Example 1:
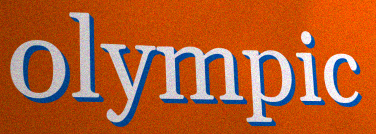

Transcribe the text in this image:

olympic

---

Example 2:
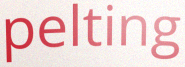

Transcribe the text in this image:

pelting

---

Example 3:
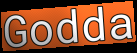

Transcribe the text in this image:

Godda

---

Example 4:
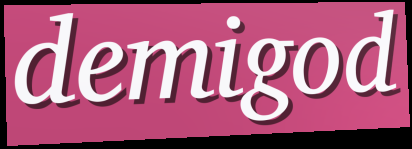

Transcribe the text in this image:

demigod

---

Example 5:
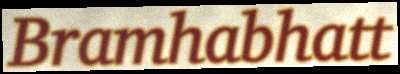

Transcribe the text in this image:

Bramhabhatt